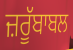
ਜ਼ਰੂੱਬਾਬਲ